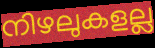
നിഴലുകളല്ല